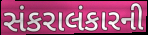
સંકરાલંકારની